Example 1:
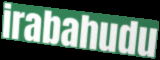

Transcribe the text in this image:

irabahudu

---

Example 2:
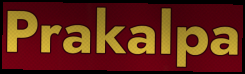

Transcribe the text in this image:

Prakalpa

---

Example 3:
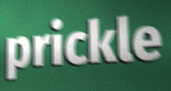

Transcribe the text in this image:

prickle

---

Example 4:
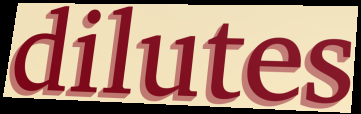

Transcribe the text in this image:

dilutes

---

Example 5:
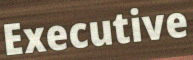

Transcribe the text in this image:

Executive